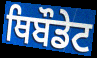
ਥਿਬੌਡੇਟ